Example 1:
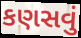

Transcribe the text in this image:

કણસવું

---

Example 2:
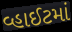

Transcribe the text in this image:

વ્હાઈટમાં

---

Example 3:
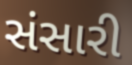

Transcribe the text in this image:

સંસારી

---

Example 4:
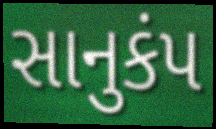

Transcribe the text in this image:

સાનુકંપ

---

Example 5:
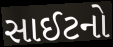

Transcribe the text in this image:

સાઈટનો